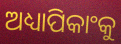
ଅଧ୍ୟାପିକାଂକୁ